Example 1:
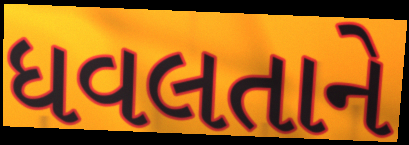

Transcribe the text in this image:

ધવલતાને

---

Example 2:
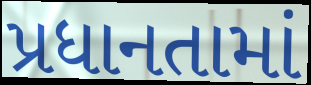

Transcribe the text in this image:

પ્રધાનતામાં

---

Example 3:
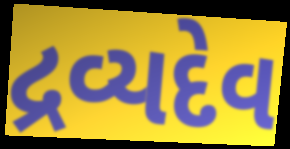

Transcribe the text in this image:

દ્રવ્યદેવ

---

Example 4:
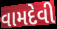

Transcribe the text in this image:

વામદેવી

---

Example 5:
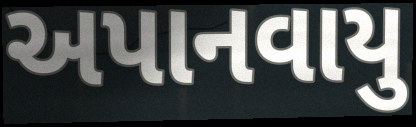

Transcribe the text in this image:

અપાનવાયુ